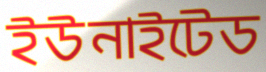
ইউনাইটেড